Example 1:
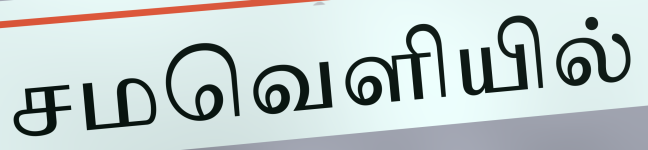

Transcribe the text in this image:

சமவெளியில்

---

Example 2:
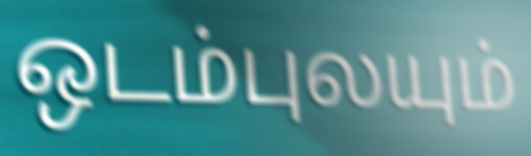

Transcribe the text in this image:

ஒடம்புலயும்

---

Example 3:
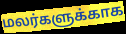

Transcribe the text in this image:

மலர்களுக்காக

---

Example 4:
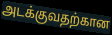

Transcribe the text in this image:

அடக்குவதற்கான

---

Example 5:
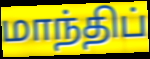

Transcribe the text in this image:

மாந்திப்